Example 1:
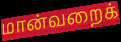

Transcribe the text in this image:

மான்வறைக்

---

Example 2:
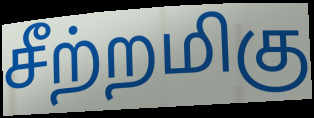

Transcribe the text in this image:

சீற்றமிகு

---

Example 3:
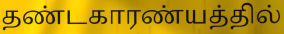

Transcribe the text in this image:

தண்டகாரண்யத்தில்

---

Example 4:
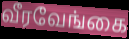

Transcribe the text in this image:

வீரவேங்கை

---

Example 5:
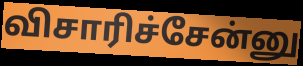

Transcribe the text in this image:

விசாரிச்சேன்னு